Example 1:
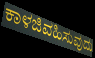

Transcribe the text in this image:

ಕಾಳಜಿವಹಿಸುವುದು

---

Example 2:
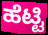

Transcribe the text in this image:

ಹೆಟ್ಟಿ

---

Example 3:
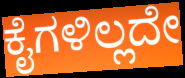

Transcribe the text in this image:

ಕೈಗಳಿಲ್ಲದೇ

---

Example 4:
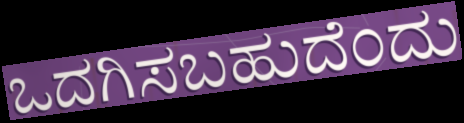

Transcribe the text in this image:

ಒದಗಿಸಬಹುದೆಂದು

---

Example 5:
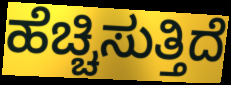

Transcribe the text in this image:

ಹೆಚ್ಚಿಸುತ್ತಿದೆ